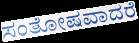
ಸಂತೋಷವಾದರೆ